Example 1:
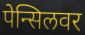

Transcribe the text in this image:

पेन्सिलवर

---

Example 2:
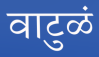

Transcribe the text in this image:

वाटुळं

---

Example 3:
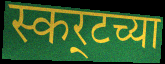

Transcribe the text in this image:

स्कर्टच्या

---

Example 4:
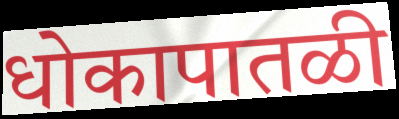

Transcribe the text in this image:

धोकापातळी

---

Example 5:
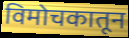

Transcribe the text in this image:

विमोचकातून